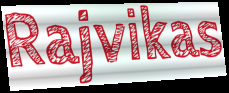
Rajvikas